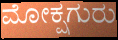
ಮೋಕ್ಷಗುರು